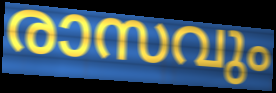
രാസവും